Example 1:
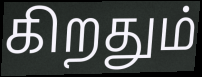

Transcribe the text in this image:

கிறதும்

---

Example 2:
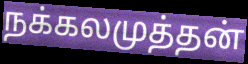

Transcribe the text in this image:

நக்கலமுத்தன்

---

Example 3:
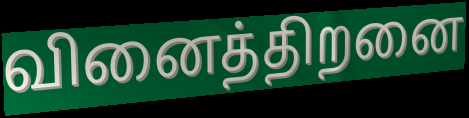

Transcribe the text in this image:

வினைத்திறனை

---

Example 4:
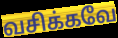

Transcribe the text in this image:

வசிக்கவே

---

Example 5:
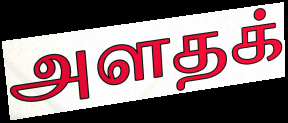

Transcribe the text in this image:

அளதக்